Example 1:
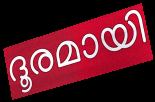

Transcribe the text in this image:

ദൂരമായി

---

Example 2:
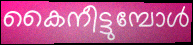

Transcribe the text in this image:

കൈനീട്ടുമ്പോൾ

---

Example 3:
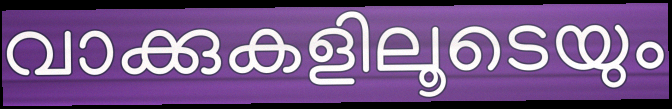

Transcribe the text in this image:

വാക്കുകളിലൂടെയും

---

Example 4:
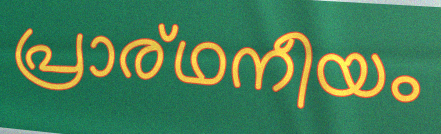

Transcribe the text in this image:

പ്രാര്ഥനീയം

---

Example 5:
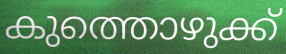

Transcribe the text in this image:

കുത്തൊഴുക്ക്